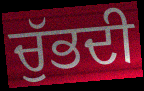
ਚੁੱਭਦੀ